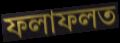
ফলাফলত